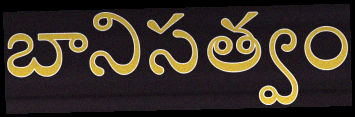
బానిసత్వం